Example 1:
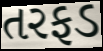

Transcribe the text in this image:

તરફડ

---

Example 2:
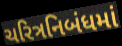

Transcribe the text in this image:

ચરિત્રનિબંધમાં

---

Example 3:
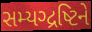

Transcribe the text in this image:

સમ્યગ્દ્રષ્ટિને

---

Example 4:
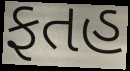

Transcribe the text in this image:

ફતહ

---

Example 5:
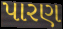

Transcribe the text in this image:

પારણ